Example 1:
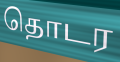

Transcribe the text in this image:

தொடர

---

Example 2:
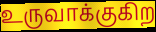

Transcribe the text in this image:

உருவாக்குகிற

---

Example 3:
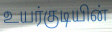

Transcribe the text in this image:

உயர்குடியின்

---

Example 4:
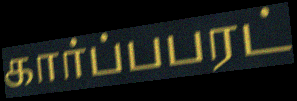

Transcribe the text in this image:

கார்ப்பபரட்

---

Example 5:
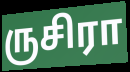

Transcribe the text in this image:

ருசிரா